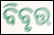
ବିବୃତ୍ତ